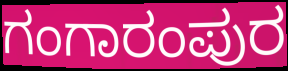
ಗಂಗಾರಂಪುರ